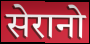
सेरानो